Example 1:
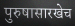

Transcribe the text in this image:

पुरुषासारखेच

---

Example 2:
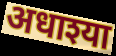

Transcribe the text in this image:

अधाश्या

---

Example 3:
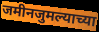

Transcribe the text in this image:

जमीनजुमल्याच्या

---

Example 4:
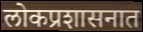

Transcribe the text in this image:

लोकप्रशासनात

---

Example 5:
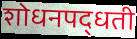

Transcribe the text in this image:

शोधनपद्धती